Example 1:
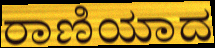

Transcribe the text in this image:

ರಾಣಿಯಾದ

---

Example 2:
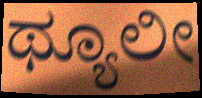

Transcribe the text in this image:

ಥ್ಯೂಲೀ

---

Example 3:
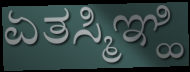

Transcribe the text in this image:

ಏತಸ್ಮಿಞ್ಹಿ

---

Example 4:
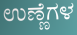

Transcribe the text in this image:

ಉಣ್ಣೆಗಳ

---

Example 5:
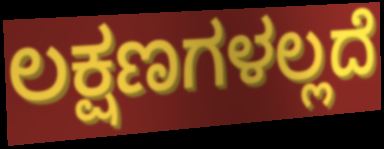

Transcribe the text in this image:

ಲಕ್ಷಣಗಳಲ್ಲದೆ